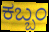
ಕಬ್ಬಂ